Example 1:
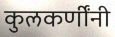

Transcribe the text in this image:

कुलकर्णींनी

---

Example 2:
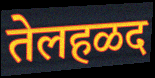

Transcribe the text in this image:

तेलहळद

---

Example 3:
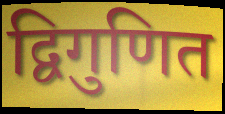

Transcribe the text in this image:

द्विगुणित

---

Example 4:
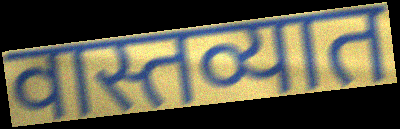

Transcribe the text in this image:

वास्तव्यात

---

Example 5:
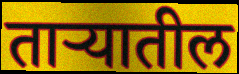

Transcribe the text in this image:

ताऱ्यातील